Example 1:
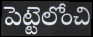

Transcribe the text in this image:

పెట్టెలోంచి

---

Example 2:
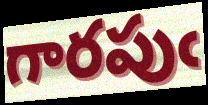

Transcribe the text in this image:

గారపుఁ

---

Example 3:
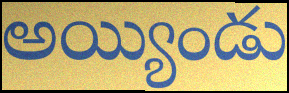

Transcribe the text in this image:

అయ్యిండు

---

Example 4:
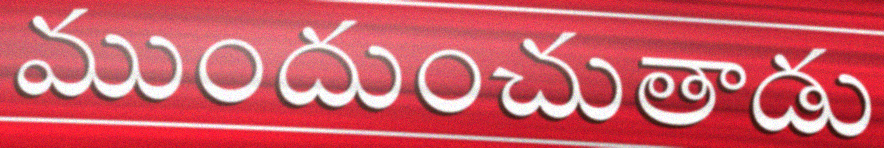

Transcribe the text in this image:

ముందుంచుతాడు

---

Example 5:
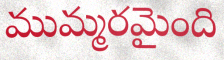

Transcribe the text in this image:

ముమ్మరమైంది